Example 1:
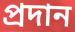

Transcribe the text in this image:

প্রদান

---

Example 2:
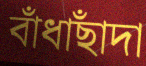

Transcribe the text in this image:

বাঁধাছাঁদা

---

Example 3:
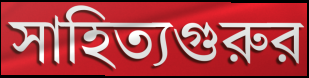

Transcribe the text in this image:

সাহিত্যগুরুর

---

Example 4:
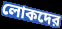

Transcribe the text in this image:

লোকদের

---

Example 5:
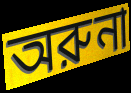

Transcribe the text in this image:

অরুনা